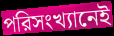
পরিসংখ্যানেই